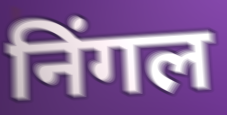
निंगल